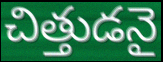
చిత్తుడనై